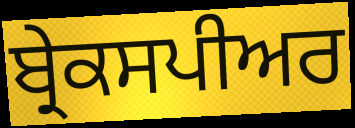
ਬ੍ਰੇਕਸਪੀਅਰ